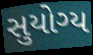
સુયોગ્ય